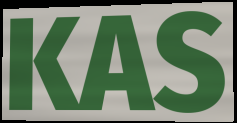
KAS